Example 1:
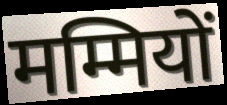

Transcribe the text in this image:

मम्मियों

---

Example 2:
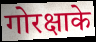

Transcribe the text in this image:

गोरक्षाके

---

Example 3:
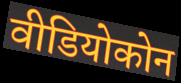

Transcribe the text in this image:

वीडियोकोन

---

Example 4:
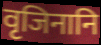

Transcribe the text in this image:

वृजिनानि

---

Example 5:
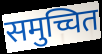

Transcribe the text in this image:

समुच्चित